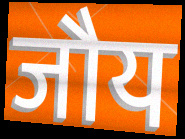
जौय